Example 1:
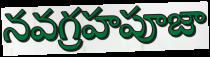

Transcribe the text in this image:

నవగ్రహపూజా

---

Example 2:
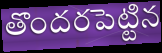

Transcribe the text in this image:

తొందరపెట్టిన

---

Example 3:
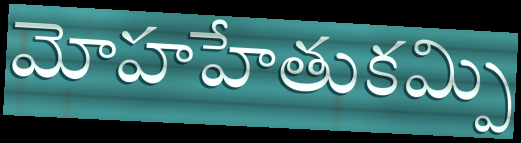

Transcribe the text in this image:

మోహహేతుకమ్పి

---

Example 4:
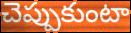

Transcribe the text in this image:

చెప్పుకుంటా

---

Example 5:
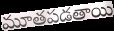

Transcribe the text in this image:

మూతపడతాయి